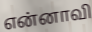
என்னாவி